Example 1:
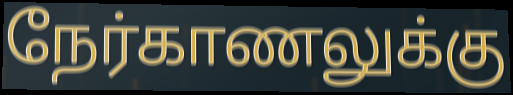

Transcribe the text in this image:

நேர்காணலுக்கு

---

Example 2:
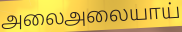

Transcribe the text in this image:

அலைஅலையாய்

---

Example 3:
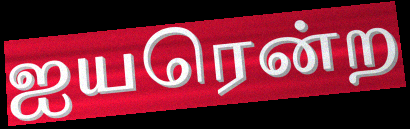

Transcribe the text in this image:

ஐயரென்ற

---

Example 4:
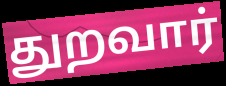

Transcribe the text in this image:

துறவார்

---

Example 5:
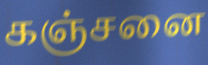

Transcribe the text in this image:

கஞ்சனை